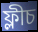
ফ্লীচ